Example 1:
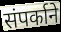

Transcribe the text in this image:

संपर्काने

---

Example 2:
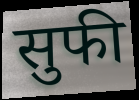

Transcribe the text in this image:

सुफी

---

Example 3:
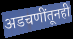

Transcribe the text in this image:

अडचणींतूनही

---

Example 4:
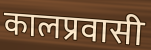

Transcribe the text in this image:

कालप्रवासी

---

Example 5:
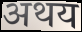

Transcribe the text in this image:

अथय